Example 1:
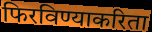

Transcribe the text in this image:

फिरविण्याकरिता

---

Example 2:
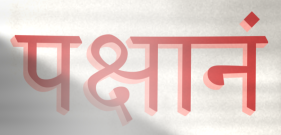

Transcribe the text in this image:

पक्षानं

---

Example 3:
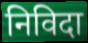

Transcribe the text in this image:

निविदा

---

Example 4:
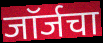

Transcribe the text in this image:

जॉर्जचा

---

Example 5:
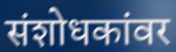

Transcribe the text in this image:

संशोधकांवर